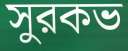
সুরকভ